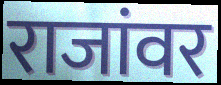
राजांवर